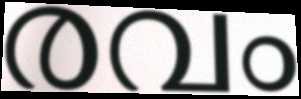
രവം